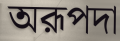
অরূপদা